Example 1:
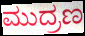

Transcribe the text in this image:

ಮುದ್ರಣ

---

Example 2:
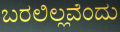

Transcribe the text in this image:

ಬರಲಿಲ್ಲವೆಂದು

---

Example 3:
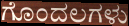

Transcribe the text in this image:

ಗೊಂದಲಗಳು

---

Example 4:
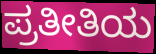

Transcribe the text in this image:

ಪ್ರತೀತಿಯ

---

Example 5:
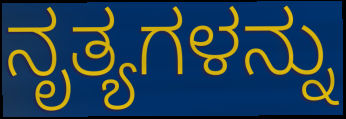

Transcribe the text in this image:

ನೃತ್ಯಗಳನ್ನು